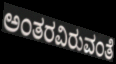
ಅಂತರವಿರುವಂತೆ